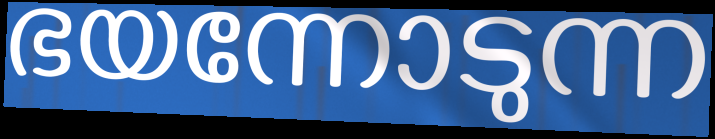
ഭയന്നോടുന്ന